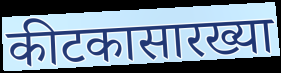
कीटकासारख्या